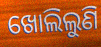
ଖୋଲିଲୁଣି